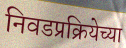
निवडप्रक्रियेच्या